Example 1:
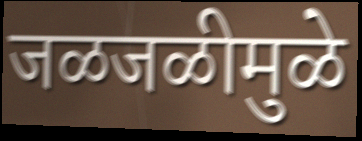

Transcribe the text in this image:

जळजळीमुळे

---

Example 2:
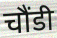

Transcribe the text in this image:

चौंडी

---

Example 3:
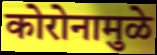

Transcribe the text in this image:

कोरोनामुळे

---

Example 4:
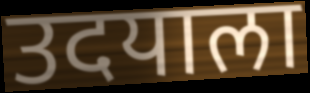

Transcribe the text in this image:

उदयाला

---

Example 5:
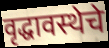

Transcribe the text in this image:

वृद्धावस्थेचे